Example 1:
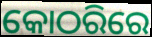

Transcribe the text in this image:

କୋଠରିରେ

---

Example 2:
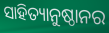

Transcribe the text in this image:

ସାହିତ୍ୟାନୁଷ୍ଠାନର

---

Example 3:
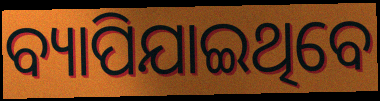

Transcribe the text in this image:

ବ୍ୟାପିଯାଇଥିବେ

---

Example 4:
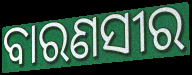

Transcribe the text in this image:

ବାରଣସୀର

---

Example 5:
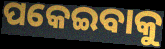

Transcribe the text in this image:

ପକେଇବାକୁ